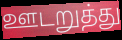
ஊடறுத்து